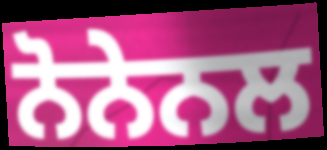
ਨੋਨੇਨਲ